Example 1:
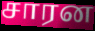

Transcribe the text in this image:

சாரன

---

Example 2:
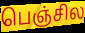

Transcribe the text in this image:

பெஞ்சில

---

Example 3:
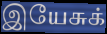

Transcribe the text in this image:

இயேசுக்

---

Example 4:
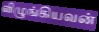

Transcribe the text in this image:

விழுங்கியவன்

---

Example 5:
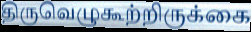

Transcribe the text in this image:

திருவெழுகூற்றிருக்கை